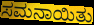
ಸಮನಾಯಿತು